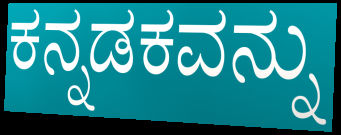
ಕನ್ನಡಕವನ್ನು